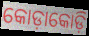
କୋଡ଼ାକୋଡ଼ି